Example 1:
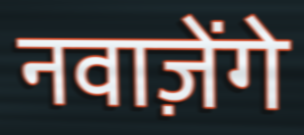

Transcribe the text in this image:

नवाज़ेंगे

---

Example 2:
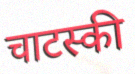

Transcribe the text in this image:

चाटस्की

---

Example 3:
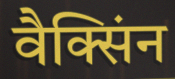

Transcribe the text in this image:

वैक्सिंन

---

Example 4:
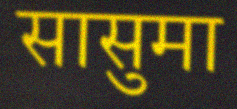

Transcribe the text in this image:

सासुमा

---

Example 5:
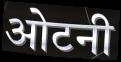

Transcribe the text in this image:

ओटनी